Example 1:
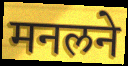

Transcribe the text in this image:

मनलने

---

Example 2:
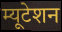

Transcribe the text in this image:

म्यूटेशन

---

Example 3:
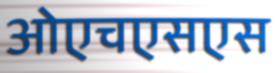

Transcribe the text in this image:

ओएचएसएस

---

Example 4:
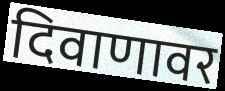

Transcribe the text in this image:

दिवाणावर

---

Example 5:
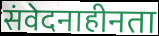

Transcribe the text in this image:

संवेदनाहीनता